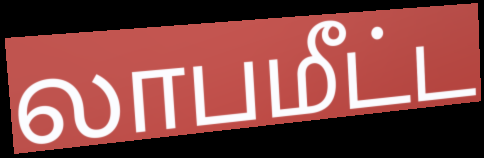
லாபமீட்ட